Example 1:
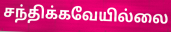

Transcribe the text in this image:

சந்திக்கவேயில்லை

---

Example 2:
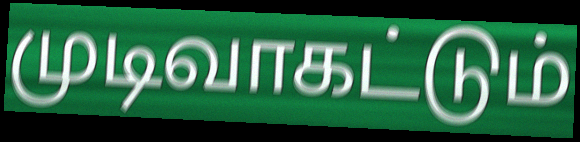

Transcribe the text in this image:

முடிவாகட்டும்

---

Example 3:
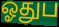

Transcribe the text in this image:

ஓதுப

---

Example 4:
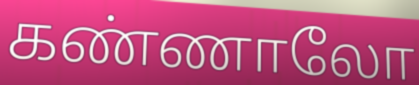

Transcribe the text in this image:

கண்ணாலோ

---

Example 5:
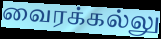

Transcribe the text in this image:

வைரக்கல்லு